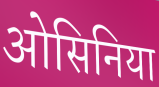
ओसिनिया